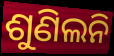
ଶୁଣିଲନି